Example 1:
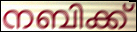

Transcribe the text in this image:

നബിക്ക്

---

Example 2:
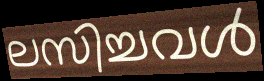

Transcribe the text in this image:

ലസിച്ചവൾ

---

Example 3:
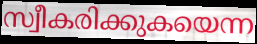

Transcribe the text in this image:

സ്വീകരിക്കുകയെന്ന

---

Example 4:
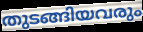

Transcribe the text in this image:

തുടങ്ങിയവരും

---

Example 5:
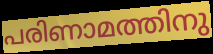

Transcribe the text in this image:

പരിണാമത്തിനു